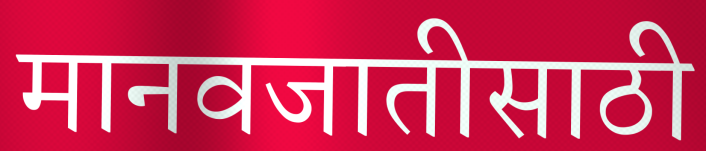
मानवजातीसाठी